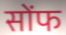
सोंफ